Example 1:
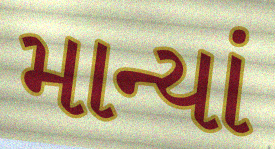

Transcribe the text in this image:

માન્યાં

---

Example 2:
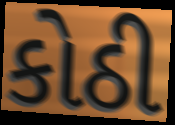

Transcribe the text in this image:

કોઠી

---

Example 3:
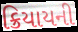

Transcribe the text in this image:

ક્રિયાયની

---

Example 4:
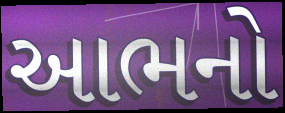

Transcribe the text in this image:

આભનો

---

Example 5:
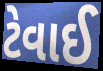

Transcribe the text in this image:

ટેવાઈ